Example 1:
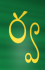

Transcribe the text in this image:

ర్వ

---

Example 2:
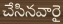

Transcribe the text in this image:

చేసినవారై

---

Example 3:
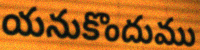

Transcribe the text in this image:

యనుకొందుము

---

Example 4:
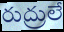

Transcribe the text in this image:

రుద్రులే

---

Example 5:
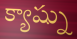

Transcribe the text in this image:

క్యాష్ను